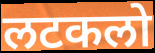
लटकलो